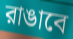
রাঙাবে